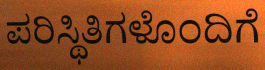
ಪರಿಸ್ಥಿತಿಗಳೊಂದಿಗೆ